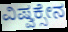
ವಿಷ್ವಕ್ಸೇನ